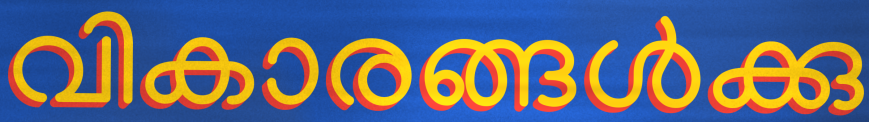
വികാരങ്ങൾക്കു